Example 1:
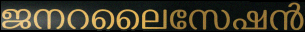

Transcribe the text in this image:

ജനറലൈസേഷൻ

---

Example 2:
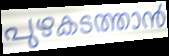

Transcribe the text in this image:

പുഴകടത്താൻ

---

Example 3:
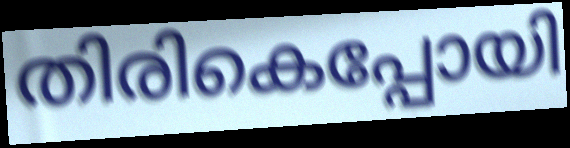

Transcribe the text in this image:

തിരികെപ്പോയി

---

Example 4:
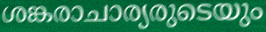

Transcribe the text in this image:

ശങ്കരാചാര്യരുടെയും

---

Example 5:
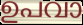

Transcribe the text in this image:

ഉപവാ